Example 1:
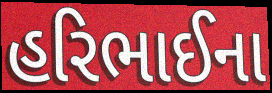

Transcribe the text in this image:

હરિભાઈના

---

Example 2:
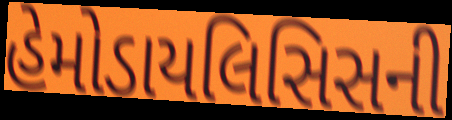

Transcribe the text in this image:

હેમોડાયલિસિસની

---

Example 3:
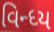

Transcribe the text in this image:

વિન્ધ્ય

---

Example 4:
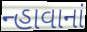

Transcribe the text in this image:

ન્હાવાનાં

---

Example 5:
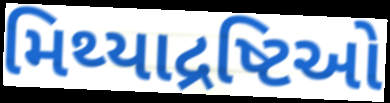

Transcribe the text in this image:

મિથ્યાદ્રષ્ટિઓ